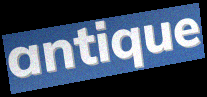
antique